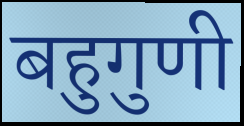
बहुगुणी